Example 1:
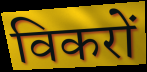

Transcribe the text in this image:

विकरों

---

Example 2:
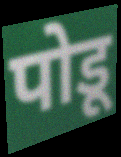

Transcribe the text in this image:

पोडू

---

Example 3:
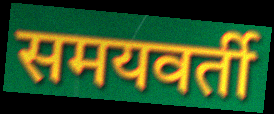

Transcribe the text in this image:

समयवर्ती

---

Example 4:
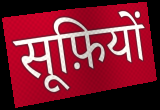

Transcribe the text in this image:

सूफ़ियों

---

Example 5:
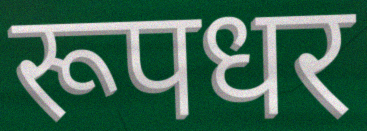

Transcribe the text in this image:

रूपधर